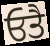
ਓਤੈ